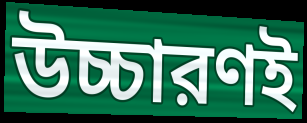
উচ্চারণই